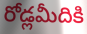
రోడ్లమీదికి